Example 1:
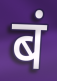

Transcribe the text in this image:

बं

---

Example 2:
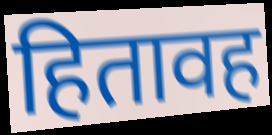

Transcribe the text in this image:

हितावह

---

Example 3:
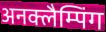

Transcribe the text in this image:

अनक्लैम्पिंग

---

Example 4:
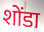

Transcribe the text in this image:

शोंडा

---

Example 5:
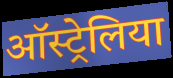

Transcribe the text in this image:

ऑस्‍ट्रेलिया